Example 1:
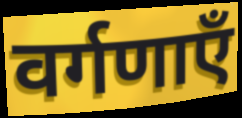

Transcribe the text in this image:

वर्गणाएँ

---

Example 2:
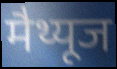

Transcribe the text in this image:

मैथ्‍यूज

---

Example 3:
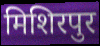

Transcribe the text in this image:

मिशिरपुर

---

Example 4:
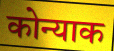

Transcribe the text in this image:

कोन्याक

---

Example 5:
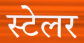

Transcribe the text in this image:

स्टेलर